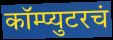
कॉम्प्युटरचं